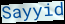
Sayyid